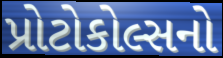
પ્રોટોકોલ્સનો